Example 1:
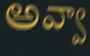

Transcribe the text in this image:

అవ్వా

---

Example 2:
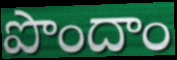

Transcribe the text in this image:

పొందాం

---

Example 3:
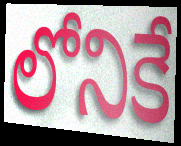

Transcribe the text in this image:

లోనికే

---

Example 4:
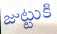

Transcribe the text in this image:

జుట్టుకి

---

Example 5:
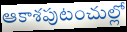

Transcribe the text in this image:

ఆకాశపుటంచుల్లో